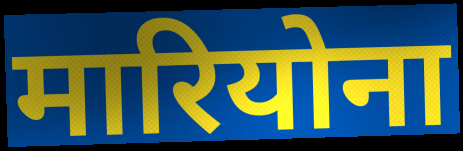
मारियोना